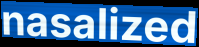
nasalized